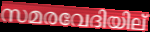
സമരവേദിയില്